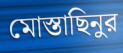
মোস্তাছিনুর